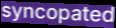
syncopated